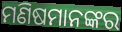
ମଣିଷମାନଙ୍କର